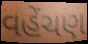
વહેંચણ